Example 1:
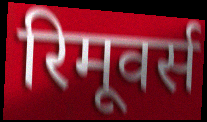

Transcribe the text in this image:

रिमूवर्स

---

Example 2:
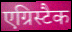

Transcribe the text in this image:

एग्रिस्टैक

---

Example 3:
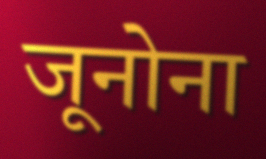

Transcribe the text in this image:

जूनोना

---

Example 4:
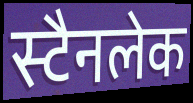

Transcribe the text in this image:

स्टैनलेक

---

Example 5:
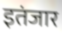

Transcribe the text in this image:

इतंजार